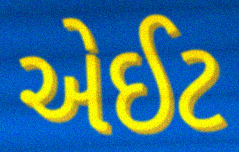
એઈટ